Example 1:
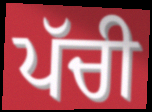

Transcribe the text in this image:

ਪੱਚੀ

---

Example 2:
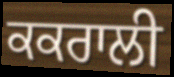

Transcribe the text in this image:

ਕਕਰਾਲੀ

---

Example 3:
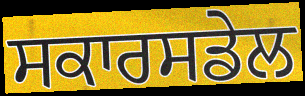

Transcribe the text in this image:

ਸਕਾਰਸਡੇਲ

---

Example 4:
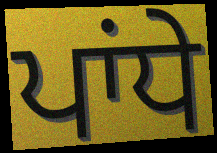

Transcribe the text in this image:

ਪਾਂਧੇ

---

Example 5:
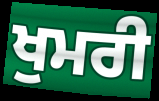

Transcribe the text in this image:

ਖੁਮਰੀ